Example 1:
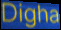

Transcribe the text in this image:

Digha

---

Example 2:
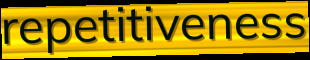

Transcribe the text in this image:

repetitiveness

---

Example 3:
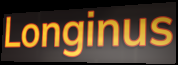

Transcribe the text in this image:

Longinus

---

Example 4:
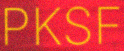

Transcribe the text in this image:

PKSF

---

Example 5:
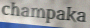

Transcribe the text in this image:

champaka